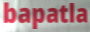
bapatla